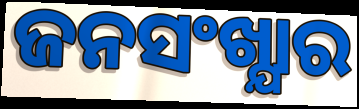
ଜନସଂଖ୍ଯାର